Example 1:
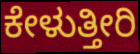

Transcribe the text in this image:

ಕೇಳುತ್ತೀರಿ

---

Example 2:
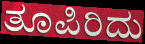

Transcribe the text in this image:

ತೂಪಿರಿದು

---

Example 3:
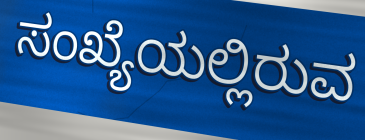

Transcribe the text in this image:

ಸಂಖ್ಯೆಯಲ್ಲಿರುವ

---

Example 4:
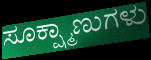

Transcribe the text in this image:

ಸೂಕ್ಷ್ಮಾಣುಗಳು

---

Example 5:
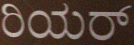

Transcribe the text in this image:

ರಿಯರ್